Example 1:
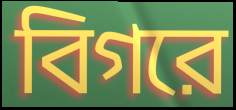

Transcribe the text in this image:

বিগরে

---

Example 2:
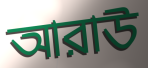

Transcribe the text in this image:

আরাউ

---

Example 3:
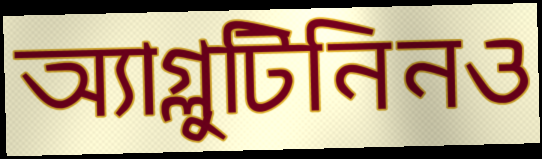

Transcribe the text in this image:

অ্যাগ্লুটিনিনও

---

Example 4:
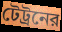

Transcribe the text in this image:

টেট্রনের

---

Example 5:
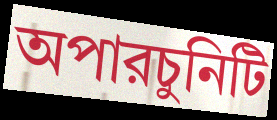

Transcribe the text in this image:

অপারচুনিটি